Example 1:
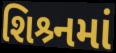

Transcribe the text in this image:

શિશ્ર્નમાં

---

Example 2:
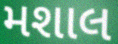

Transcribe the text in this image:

મશાલ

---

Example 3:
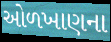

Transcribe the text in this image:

ઓળખાણના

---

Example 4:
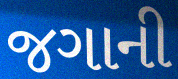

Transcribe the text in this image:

જગાની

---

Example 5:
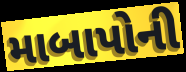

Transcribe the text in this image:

માબાપોની